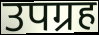
उपग्रह